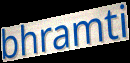
bhramti